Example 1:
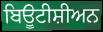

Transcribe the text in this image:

ਬਿਊਟੀਸ਼ੀਅਨ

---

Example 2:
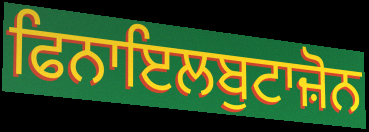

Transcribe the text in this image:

ਫਿਨਾਇਲਬੁਟਾਜ਼ੋਨ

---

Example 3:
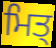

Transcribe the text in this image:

ਮਿਤ੍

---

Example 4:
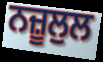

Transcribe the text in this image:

ਨਜ਼ੂਲੁਲ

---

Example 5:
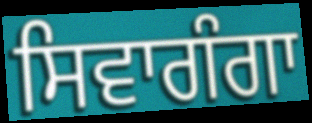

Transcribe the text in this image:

ਸਿਵਾਗੰਗਾ